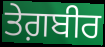
ਤੇਗ਼ਬੀਰ